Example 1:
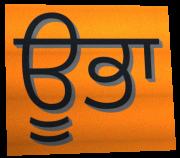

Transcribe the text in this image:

ਊਭਾ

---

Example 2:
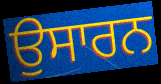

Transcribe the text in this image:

ਉਸਾਰਨ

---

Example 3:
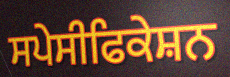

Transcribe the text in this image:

ਸਪੇਸੀਫਿਕੇਸ਼ਨ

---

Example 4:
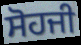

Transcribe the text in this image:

ਸੋਹਜੀ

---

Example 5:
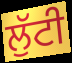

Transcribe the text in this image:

ਲੁੱਟੀ